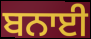
ਬਨਾਈ